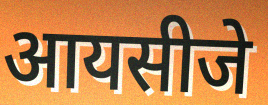
आयसीजे